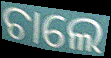
ଚାଲେ